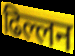
ढिल्लन